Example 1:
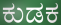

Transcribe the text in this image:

ಕುಡಕ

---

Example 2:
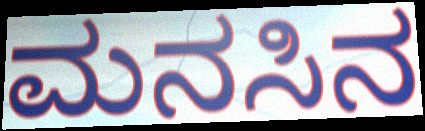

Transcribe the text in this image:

ಮನಸಿನ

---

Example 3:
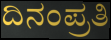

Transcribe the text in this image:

ದಿನಂಪ್ರತಿ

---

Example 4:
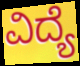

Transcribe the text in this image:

ವಿದ್ಯೆ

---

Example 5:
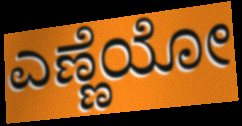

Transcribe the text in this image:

ಎಣ್ಣೆಯೋ